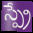
స్ప్రే